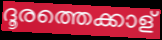
ദൂരത്തെക്കാള്